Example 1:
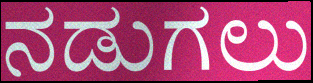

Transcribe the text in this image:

ನಡುಗಲು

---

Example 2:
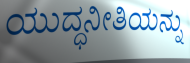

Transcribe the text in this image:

ಯುದ್ಧನೀತಿಯನ್ನು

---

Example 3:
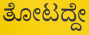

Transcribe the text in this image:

ತೋಟದ್ದೇ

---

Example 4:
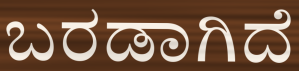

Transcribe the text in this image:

ಬರಡಾಗಿದೆ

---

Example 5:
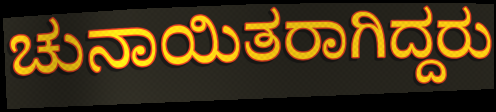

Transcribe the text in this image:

ಚುನಾಯಿತರಾಗಿದ್ದರು